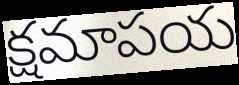
క్షమాపయ